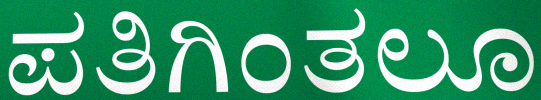
ಪತಿಗಿಂತಲೂ